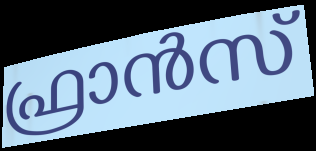
ഫ്രാൻസ്